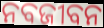
ନବଜୀବନ